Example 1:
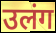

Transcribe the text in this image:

उलंग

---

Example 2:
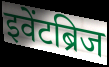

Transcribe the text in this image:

इवेंटब्रिज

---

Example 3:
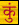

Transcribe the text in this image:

कुं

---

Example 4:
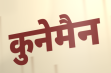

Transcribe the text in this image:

कुनेमैन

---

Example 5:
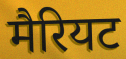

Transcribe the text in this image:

मैरियट